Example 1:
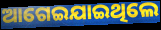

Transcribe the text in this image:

ଆଗେଇଯାଇଥିଲେ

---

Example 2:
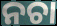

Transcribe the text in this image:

ନଚା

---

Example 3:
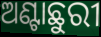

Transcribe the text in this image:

ଅଣ୍ଟାଛୁରୀ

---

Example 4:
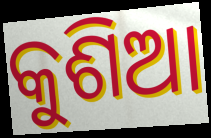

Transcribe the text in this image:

କୁଶିଆ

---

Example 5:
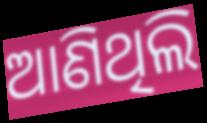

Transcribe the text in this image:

ଆଣିଥିଲି